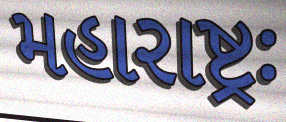
મહારાષ્ટ્રઃ